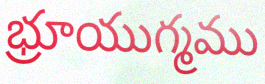
భ్రూయుగ్మము